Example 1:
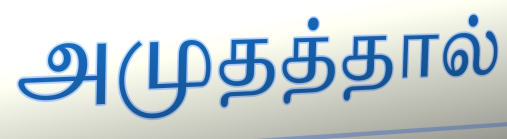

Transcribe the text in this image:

அமுதத்தால்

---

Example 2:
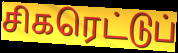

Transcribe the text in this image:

சிகரெட்டுப்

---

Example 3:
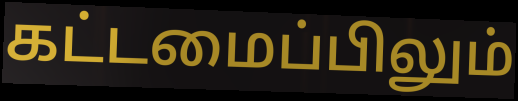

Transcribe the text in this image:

கட்டமைப்பிலும்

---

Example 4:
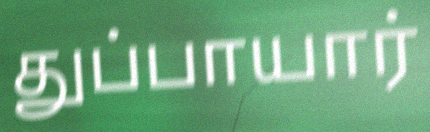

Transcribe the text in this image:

துப்பாயார்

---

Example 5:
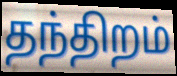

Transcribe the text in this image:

தந்திறம்